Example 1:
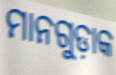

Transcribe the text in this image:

ମାନଗୁଡ଼ାକ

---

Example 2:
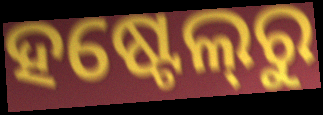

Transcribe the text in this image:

ହଷ୍ଟେଲ୍‍ରୁ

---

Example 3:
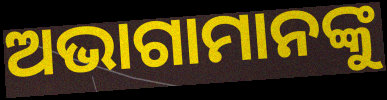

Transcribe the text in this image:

ଅଭାଗାମାନଙ୍କୁ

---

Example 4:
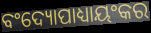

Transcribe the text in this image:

ବଂଦ୍ୟୋପାଧ୍ୟାୟଂକର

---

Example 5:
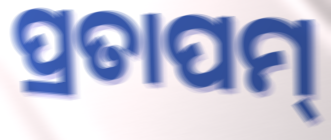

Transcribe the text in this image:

ପ୍ରତାପମ୍